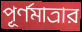
পূর্ণমাত্রার